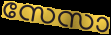
സേസാ